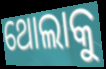
ଥୋଲାକୁ